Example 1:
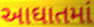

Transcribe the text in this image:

આઘાતમાં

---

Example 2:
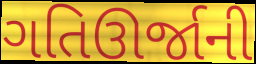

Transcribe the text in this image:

ગતિઊર્જાની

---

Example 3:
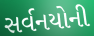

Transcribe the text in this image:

સર્વનયોની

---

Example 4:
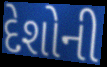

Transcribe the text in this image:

દેશોની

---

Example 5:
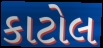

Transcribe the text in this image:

કાટોલ